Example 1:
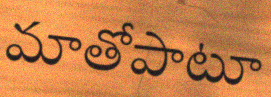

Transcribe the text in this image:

మాతోపాటూ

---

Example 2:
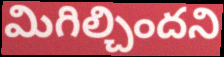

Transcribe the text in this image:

మిగిల్చిందని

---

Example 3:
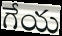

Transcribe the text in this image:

గేయ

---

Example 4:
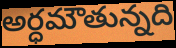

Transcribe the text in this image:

అర్ధమౌతున్నది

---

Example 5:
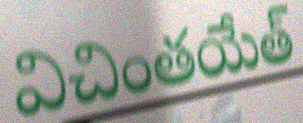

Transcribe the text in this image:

విచింతయేత్